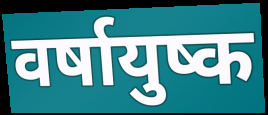
वर्षायुष्क